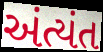
અંત્યંત